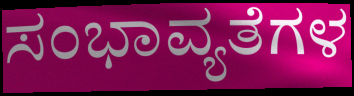
ಸಂಭಾವ್ಯತೆಗಳ